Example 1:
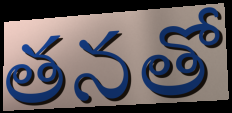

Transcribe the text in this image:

తనతో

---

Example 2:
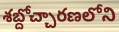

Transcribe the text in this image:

శబ్దోచ్చారణలోని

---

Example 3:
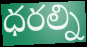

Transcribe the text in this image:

ధరల్ని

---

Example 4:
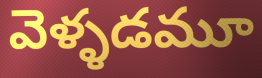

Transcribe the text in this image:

వెళ్ళడమూ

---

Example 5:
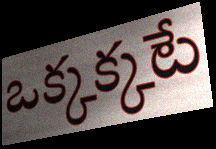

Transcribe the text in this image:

ఒక్కక్కటే